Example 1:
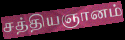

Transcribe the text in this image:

சத்தியஞானம்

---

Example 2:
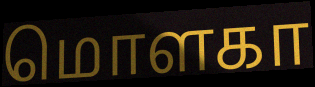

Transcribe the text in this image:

மொளகா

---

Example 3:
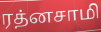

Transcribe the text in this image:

ரத்னசாமி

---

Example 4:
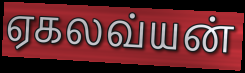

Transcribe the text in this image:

ஏகலவ்யன்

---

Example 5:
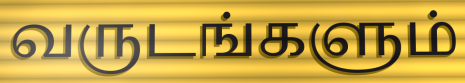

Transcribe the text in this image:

வருடங்களும்